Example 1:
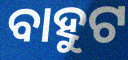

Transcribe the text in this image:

ବାହୁଟ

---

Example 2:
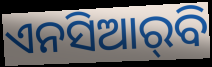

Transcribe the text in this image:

ଏନସିଆର୍‌ବି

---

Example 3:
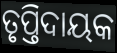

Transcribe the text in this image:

ତୃପ୍ତିଦାୟକ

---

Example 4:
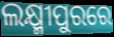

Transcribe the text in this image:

ଲକ୍ଷ୍ମୀପୁରରେ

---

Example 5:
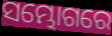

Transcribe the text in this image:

ସମ୍ଭୋଗରେ